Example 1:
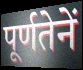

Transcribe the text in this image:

पूर्णतेनें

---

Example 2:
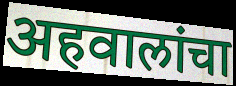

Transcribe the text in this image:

अहवालांचा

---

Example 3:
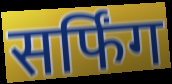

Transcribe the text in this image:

सर्फिंग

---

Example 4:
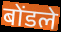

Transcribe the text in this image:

बोंडले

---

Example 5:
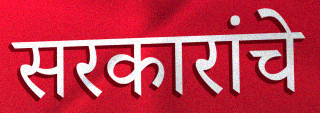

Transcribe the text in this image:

सरकारांचे